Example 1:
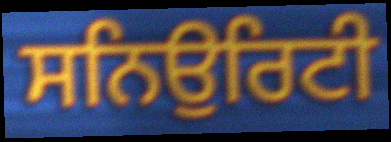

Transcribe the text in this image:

ਸਨਿਉਰਿਟੀ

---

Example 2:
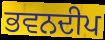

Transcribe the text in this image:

ਭਵਨਦੀਪ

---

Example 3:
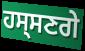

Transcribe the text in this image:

ਹਸ੍ਸਣਗੇ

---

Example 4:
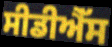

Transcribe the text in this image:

ਸੀਡੀਐੱਸ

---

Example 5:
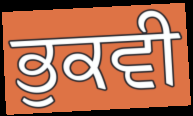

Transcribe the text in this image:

ਭੁਕਵੀ